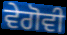
ਵੇਗੋਵੀ